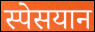
स्पेसयान